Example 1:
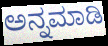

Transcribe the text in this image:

ಅನ್ನಮಾಡಿ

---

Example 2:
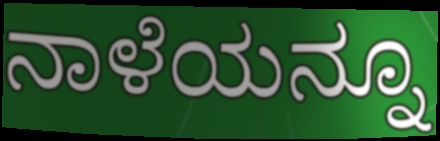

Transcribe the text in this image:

ನಾಳೆಯನ್ನೂ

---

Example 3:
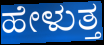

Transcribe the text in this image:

ಹೇಳುತ್ತ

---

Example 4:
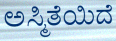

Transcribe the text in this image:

ಅಸ್ಮಿತೆಯಿದೆ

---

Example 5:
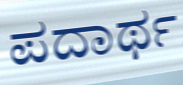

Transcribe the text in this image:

ಪದಾರ್ಥ